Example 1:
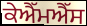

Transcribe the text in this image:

ਕੇਐੱਮਐੱਸ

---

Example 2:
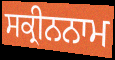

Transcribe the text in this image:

ਸਕ੍ਰੀਨਨਾਮ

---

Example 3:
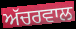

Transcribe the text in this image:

ਅੱਚਰਵਾਲ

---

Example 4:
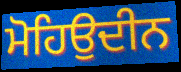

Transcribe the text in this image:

ਮੋਹਿਉਦੀਨ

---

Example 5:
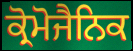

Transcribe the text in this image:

ਕ੍ਰੋਮੋਜੈਨਿਕ